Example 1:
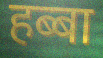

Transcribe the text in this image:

हब्‍बा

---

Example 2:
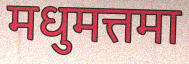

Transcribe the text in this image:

मधुमत्तमा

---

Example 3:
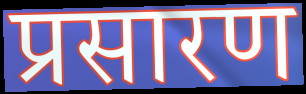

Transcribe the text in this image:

प्रसारण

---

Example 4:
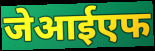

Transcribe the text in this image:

जेआईएफ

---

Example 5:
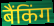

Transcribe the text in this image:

बैंकिंग